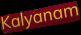
Kalyanam